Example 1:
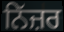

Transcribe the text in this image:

ਨਿੱਜ਼ਰ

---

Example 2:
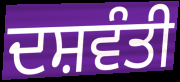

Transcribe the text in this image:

ਦਸ਼ਵੰਤੀ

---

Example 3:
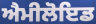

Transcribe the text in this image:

ਐਮੀਲੋਇਡ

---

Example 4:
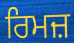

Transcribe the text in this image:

ਰਿਮਜ਼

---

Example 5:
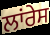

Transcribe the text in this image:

ਲਾਂਰੇਸ